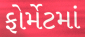
ફોર્મેટમાં